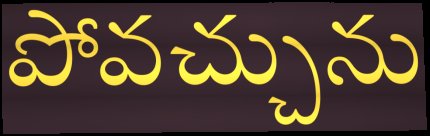
పోవచ్చును